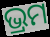
ଭ୍ରମ